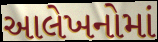
આલેખનોમાં